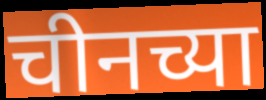
चीनच्या